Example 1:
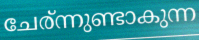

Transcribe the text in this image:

ചേര്ന്നുണ്ടാകുന്ന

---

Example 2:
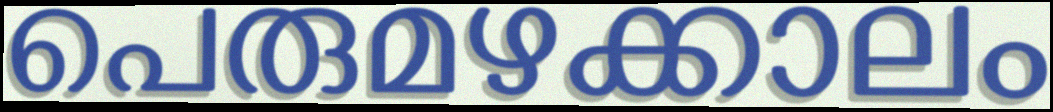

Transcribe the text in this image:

പെരുമഴക്കാലം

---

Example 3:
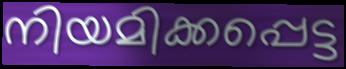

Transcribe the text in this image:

നിയമിക്കപ്പെട്ട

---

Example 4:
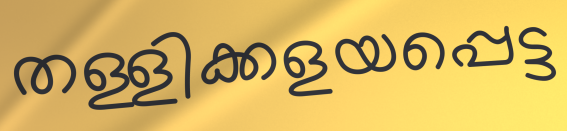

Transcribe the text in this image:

തള്ളിക്കളയപ്പെട്ട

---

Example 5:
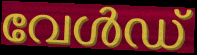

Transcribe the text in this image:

വേൾഡ്